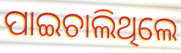
ପାଇଚାଲିଥିଲେ